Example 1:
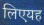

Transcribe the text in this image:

लिएयह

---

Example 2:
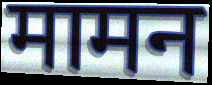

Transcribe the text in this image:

मामन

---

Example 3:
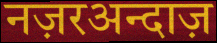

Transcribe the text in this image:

नज़रअन्दाज़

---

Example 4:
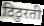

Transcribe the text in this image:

ठिठुरती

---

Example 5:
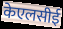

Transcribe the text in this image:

केएलसीई